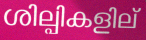
ശില്പികളില്